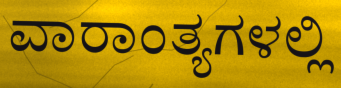
ವಾರಾಂತ್ಯಗಳಲ್ಲಿ